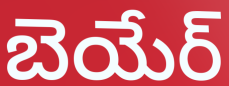
బెయేర్